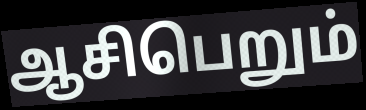
ஆசிபெறும்